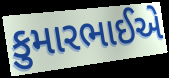
કુમારભાઈએ